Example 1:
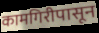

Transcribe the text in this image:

कामगिरीपासून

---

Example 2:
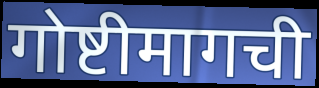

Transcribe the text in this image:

गोष्टीमागची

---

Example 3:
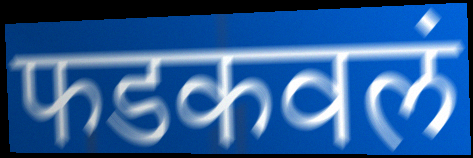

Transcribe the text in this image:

फडकवलं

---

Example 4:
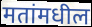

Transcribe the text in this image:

मतांमधील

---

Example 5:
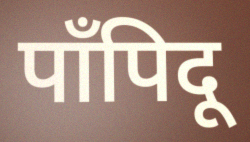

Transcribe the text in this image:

पाँपिदू